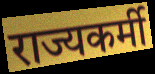
राज्यकर्मी